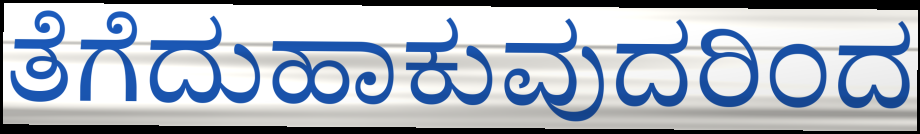
ತೆಗೆದುಹಾಕುವುದರಿಂದ